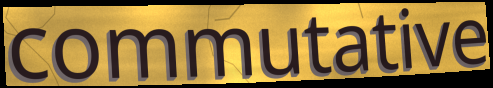
commutative